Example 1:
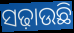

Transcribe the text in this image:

ସଢ଼ାଉଛି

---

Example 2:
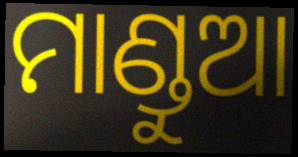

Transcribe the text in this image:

ମାଣ୍ଡୁଆ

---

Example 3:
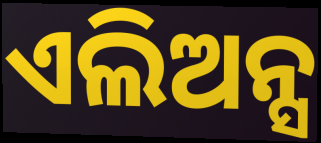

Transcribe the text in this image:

ଏଲିଅନ୍ସ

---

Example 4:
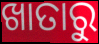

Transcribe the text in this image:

ଖାତାରୁ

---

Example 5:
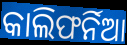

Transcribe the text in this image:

କାଲିଫର୍ନିଆ